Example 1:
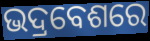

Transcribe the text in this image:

ଭଦ୍ରବେଶରେ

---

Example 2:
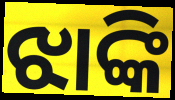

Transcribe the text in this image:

ଝାଙ୍କି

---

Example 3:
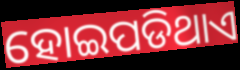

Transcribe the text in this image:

ହୋଇପଡିଥାଏ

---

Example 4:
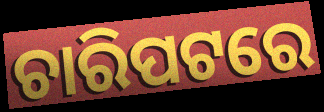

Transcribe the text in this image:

ଚାରିପଟରେ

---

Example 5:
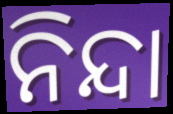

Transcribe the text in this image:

ନିନ୍ଦା